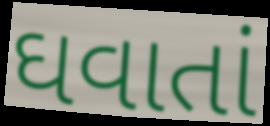
ઘવાતાં